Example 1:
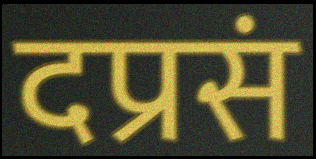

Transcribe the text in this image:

दप्रसं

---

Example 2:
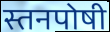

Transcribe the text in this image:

स्तनपोषी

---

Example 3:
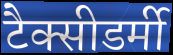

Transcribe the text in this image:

टैक्सीडर्मी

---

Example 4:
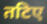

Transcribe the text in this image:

तटिए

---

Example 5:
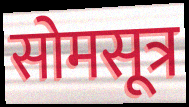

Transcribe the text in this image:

सोमसूत्र